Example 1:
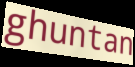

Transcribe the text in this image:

ghuntan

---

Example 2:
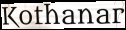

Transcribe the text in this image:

Kothanar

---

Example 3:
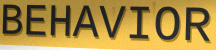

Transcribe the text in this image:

BEHAVIOR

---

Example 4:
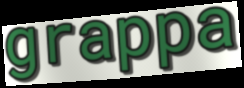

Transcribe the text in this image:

grappa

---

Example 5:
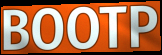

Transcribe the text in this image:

BOOTP